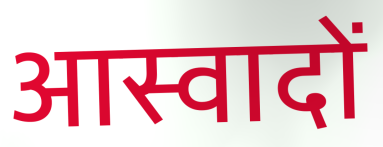
आस्वादों